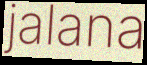
jalana